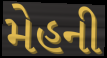
મેહની